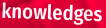
knowledges